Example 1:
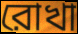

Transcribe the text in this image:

রোখা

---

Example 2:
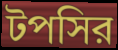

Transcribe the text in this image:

টপসির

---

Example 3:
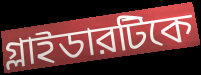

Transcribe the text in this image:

গ্লাইডারটিকে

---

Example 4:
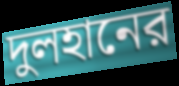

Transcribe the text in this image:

দুলহানের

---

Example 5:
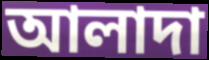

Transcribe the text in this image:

আলাদা